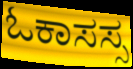
ಓಕಾಸಸ್ಸ